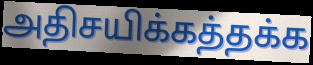
அதிசயிக்கத்தக்க